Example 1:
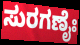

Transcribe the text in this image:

ಸುರಗಣೈಃ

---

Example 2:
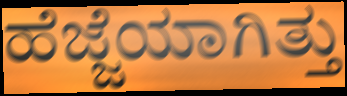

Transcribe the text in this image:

ಹೆಜ್ಜೆಯಾಗಿತ್ತು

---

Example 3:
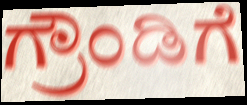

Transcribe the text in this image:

ಗ್ರೌಂಡಿಗೆ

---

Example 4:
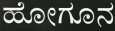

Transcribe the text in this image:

ಹೋಗೂನ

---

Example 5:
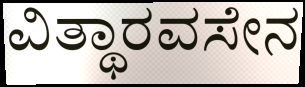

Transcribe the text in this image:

ವಿತ್ಥಾರವಸೇನ